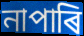
নাপাৰি